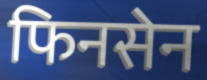
फिनसेन